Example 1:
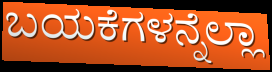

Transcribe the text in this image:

ಬಯಕೆಗಳನ್ನೆಲ್ಲಾ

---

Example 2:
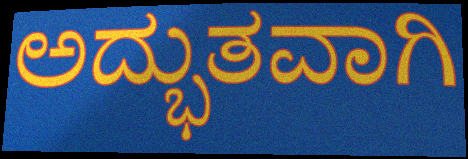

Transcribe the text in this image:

ಅದ್ಭುತವಾಗಿ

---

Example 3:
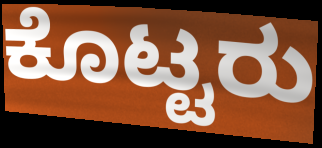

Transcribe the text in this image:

ಕೊಟ್ಟರು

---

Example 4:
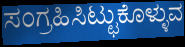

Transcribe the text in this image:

ಸಂಗ್ರಹಿಸಿಟ್ಟುಕೊಳ್ಳುವ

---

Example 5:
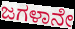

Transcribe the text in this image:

ಜಗಳಾನೇ